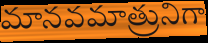
మానవమాత్రునిగా